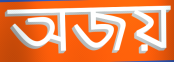
অজয়